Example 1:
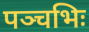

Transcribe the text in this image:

पञ्चभिः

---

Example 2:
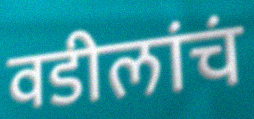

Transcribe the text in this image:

वडीलांचं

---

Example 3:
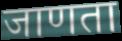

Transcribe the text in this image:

जाणता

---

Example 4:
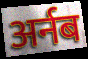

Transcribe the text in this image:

अर्नब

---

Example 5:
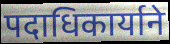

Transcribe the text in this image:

पदाधिकार्याने